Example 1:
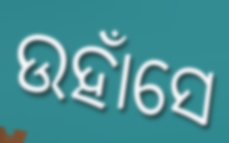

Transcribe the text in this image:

ଉହାଁସେ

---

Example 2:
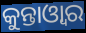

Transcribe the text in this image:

କୁନ୍ତାଓ୍ୱାର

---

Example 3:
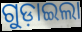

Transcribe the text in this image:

ଗୁଡ଼ାଇଲା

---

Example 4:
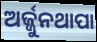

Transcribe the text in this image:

ଅର୍ଜ୍ଜୁନଥାପା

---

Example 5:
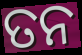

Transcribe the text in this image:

ତନ